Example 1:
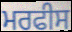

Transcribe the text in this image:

ਮਰਫੀਸ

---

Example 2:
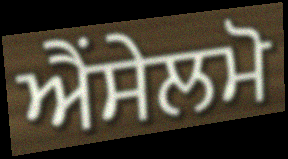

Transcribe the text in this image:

ਐਂਸੇਲਮੋ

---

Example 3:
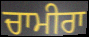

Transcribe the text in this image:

ਚਾਮੀਰਾ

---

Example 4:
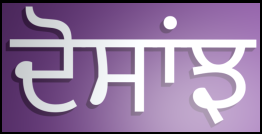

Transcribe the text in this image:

ਦੋਸਾਂਝ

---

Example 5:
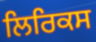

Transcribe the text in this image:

ਲਿਰਿਕਸ